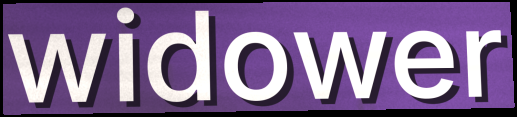
widower